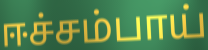
ஈச்சம்பாய்